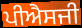
ਪੀਐਸਜੀ